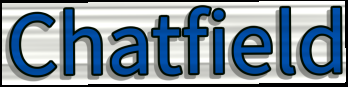
Chatfield